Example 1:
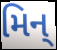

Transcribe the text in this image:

મિન્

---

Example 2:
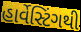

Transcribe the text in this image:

હાર્વેસ્ટિંગથી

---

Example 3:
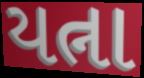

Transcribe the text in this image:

યત્ના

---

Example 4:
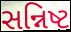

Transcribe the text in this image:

સન્નિષ્ટ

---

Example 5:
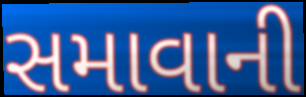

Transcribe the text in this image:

સમાવાની